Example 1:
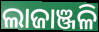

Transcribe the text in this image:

ଲାଜାଞ୍ଜଳି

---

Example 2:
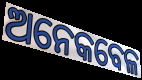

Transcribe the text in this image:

ଅନେକବେଳ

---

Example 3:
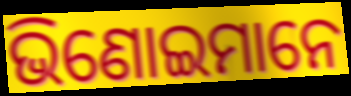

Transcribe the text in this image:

ଭିଣୋଇମାନେ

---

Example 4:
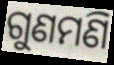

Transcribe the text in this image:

ଗୁଣମଣି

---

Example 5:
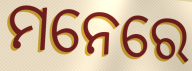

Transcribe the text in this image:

ମନେରେ